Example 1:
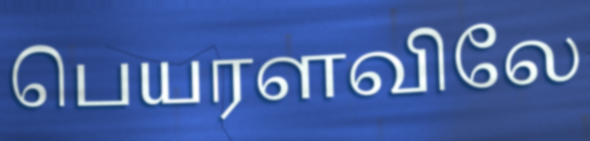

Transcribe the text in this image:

பெயரளவிலே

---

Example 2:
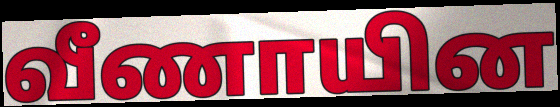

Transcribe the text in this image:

வீணாயின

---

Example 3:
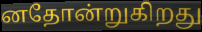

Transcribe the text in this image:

னதோன்றுகிறது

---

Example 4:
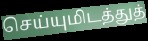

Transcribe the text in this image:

செய்யுமிடத்துத்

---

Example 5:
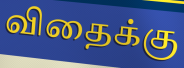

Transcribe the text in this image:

விதைக்கு